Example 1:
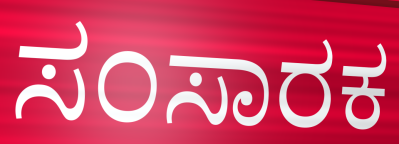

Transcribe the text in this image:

ಸಂಸಾರಕ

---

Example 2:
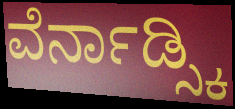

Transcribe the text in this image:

ವೆರ್ನಾಡ್ಸ್ಕಿ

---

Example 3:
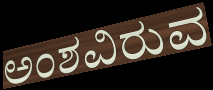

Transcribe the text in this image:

ಅಂಶವಿರುವ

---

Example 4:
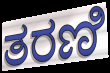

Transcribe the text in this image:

ತರಣಿ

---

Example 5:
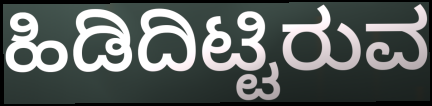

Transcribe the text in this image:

ಹಿಡಿದಿಟ್ಟಿರುವ